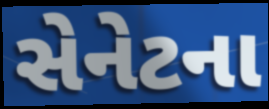
સેનેટના